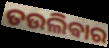
ତଉଲିଵାର